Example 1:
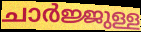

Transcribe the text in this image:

ചാർജ്ജുള്ള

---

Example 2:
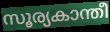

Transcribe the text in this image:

സൂര്യകാന്തീ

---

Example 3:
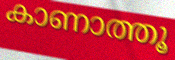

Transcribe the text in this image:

കാണാത്തൂ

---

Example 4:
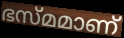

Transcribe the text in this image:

ഭസ്മമാണ്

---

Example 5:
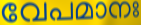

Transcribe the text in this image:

വേപമാനഃ